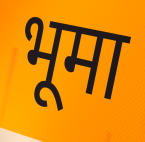
भूमा